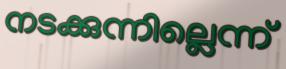
നടക്കുന്നില്ലെന്ന്